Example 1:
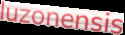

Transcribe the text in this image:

luzonensis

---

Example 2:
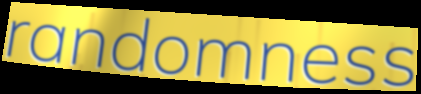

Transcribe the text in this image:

randomness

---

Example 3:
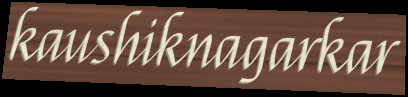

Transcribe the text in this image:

kaushiknagarkar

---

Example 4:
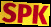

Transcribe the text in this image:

SPK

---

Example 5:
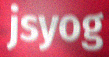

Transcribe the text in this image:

jsyog